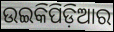
ଉଇକିପିଡ଼ିଆର